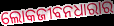
ଲୋକଜୀବନଧାରାର